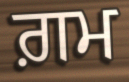
ਗ਼ਮ